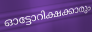
ഓട്ടോറിക്ഷക്കാരും